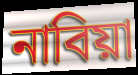
নাবিয়া